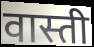
वास्ती